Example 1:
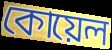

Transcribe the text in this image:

কোয়েল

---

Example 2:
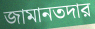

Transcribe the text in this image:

জামানতদার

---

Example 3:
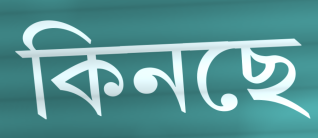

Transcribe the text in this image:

কিনছে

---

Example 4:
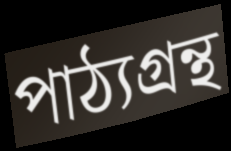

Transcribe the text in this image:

পাঠ্যগ্রন্থ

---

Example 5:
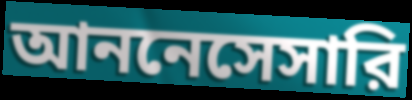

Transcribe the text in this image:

আননেসেসারি